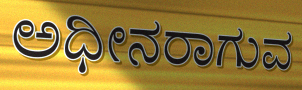
ಅಧೀನರಾಗುವ